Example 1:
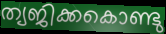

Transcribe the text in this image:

ത്യജിക്കകൊണ്ടു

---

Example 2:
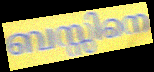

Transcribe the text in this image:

ബസ്സിനെ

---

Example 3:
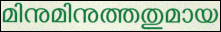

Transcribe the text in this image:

മിനുമിനുത്തതുമായ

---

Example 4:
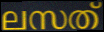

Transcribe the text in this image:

ലസത്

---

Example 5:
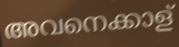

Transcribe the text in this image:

അവനെക്കാള്